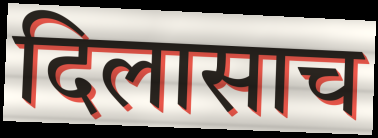
दिलासाच